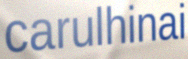
carulhinai